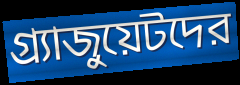
গ্র্যাজুয়েটদের